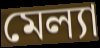
মেল্যা